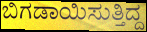
ಬಿಗಡಾಯಿಸುತ್ತಿದ್ದ